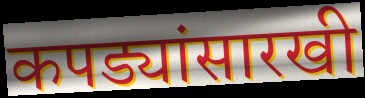
कपड्यांसारखी